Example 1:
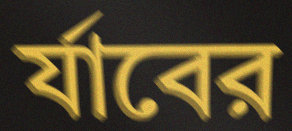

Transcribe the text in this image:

র্যাবের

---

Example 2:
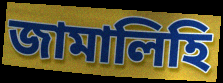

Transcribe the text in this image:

জামালিহি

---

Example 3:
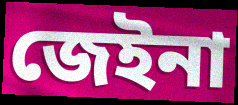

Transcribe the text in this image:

জেইনা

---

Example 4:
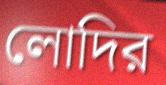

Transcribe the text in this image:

লোদির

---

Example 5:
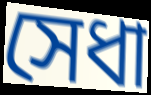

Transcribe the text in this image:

সেধা